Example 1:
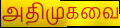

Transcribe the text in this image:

அதிமுகவை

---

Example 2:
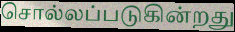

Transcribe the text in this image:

சொல்லப்படுகின்றது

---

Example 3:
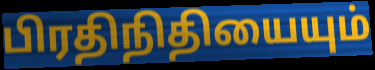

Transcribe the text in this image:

பிரதிநிதியையும்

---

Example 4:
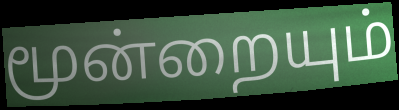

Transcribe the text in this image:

மூன்றையும்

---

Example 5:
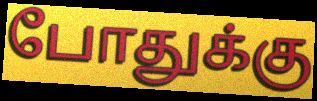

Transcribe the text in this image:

போதுக்கு